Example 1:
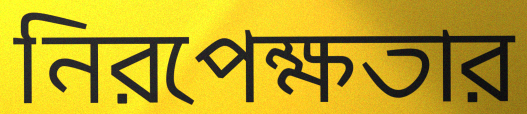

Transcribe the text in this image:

নিরপেক্ষতার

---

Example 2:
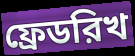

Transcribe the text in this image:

ফ্রেডরিখ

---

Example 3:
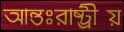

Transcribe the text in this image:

আন্তঃরাষ্ট্রীয়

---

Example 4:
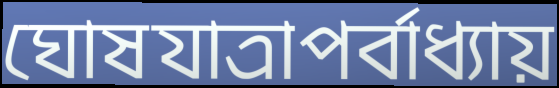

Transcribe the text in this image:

ঘোষযাত্রাপর্বাধ্যায়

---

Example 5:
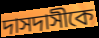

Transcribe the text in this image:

দাসদাসীকে